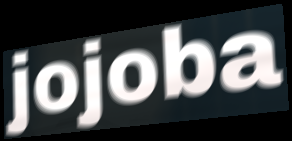
jojoba